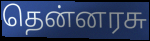
தென்னரசு